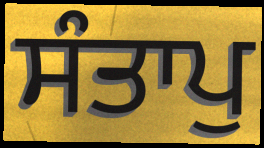
ਸੰਤਾਪੁ